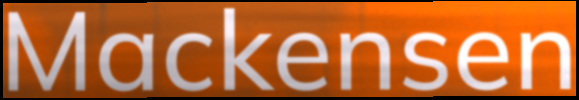
Mackensen